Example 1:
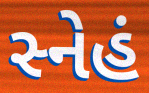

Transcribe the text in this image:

સ્નેહં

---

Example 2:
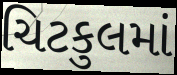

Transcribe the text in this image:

ચિટકુલમાં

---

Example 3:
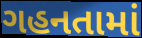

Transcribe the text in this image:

ગહનતામાં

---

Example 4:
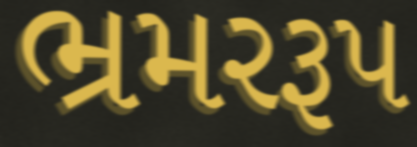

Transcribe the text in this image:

ભ્રમરરૂપ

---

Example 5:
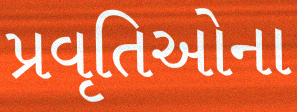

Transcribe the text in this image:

પ્રવૃતિઓના